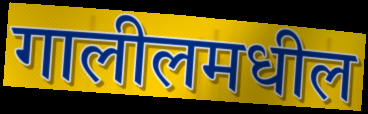
गालीलमधील